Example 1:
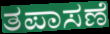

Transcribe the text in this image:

ತಪಾಸಣೆ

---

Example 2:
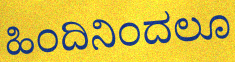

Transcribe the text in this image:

ಹಿಂದಿನಿಂದಲೂ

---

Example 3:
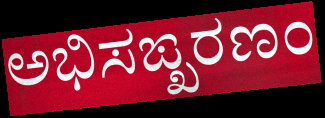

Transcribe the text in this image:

ಅಭಿಸಙ್ಖರಣಂ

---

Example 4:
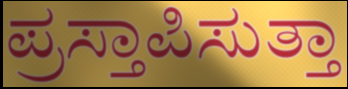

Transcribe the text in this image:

ಪ್ರಸ್ತಾಪಿಸುತ್ತಾ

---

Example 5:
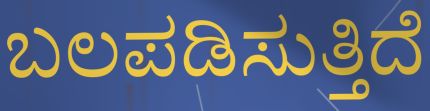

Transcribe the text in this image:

ಬಲಪಡಿಸುತ್ತಿದೆ